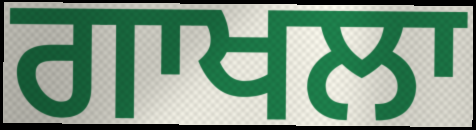
ਗਾਖਲਾ